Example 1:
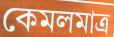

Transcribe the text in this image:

কেমলমাত্র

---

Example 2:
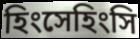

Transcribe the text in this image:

হিংসেহিংসি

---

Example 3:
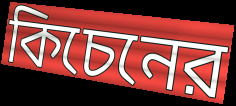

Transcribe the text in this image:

কিচেনের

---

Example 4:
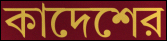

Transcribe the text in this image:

কাদেশের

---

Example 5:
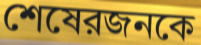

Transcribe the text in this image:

শেষেরজনকে